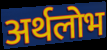
अर्थलोभ